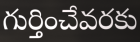
గుర్తించేవరకు